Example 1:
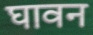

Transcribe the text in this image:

घावन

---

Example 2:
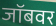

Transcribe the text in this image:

जॉबवर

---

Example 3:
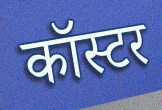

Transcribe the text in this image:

कॉस्टर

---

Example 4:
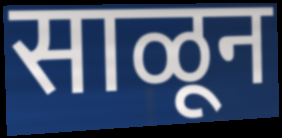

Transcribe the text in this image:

साळून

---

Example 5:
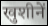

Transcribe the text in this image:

खुशीनें